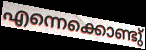
എന്നെക്കൊണ്ടു്